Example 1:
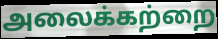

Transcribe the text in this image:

அலைக்கற்றை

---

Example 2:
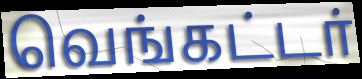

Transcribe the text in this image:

வெங்கட்டர்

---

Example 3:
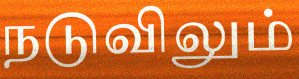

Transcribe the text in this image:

நடுவிலும்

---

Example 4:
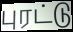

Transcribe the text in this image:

புரட்டு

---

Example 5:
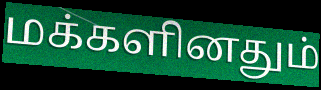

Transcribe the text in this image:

மக்களினதும்